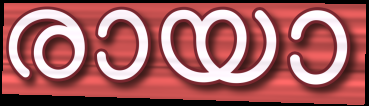
രായാ